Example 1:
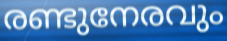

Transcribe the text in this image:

രണ്ടുനേരവും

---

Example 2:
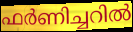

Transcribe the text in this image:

ഫർണിച്ചറിൽ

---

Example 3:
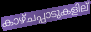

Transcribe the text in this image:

കാഴ്ചപ്പാടുകളില്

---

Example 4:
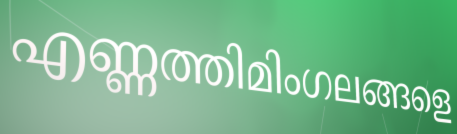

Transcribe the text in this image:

എണ്ണത്തിമിംഗലങ്ങളെ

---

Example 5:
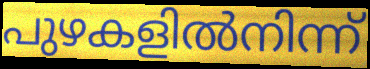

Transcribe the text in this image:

പുഴകളിൽനിന്ന്